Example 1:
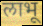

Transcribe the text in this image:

लाभू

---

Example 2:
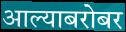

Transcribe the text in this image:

आल्याबरोबर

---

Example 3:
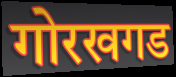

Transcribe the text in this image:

गोरखगड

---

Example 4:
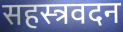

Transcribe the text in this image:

सहस्त्रवदन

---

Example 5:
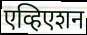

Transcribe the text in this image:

एव्हिएशन